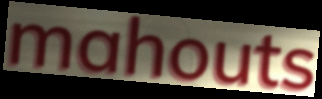
mahouts